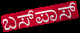
ಬಸ್‍ಪಾಸ್